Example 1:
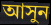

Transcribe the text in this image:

আসুন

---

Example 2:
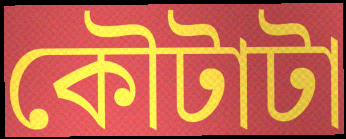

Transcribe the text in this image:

কৌটাটা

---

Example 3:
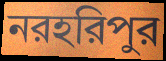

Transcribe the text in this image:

নরহরিপুর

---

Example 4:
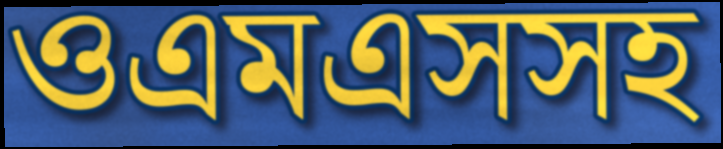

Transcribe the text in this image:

ওএমএসসহ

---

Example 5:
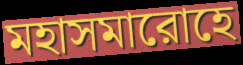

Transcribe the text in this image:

মহাসমারোহে